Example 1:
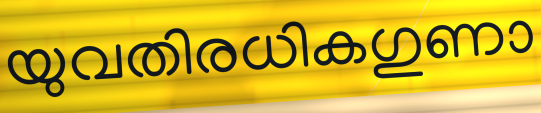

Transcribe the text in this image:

യുവതിരധികഗുണാ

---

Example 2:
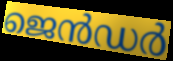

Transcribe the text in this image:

ജെൻഡർ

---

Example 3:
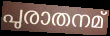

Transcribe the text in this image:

പുരാതനമ്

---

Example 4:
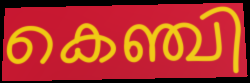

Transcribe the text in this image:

കെഞ്ചി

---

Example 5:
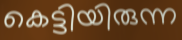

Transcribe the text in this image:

കെട്ടിയിരുന്ന